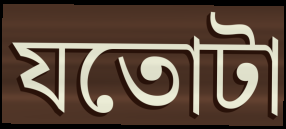
যতোটা